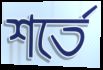
শর্তে